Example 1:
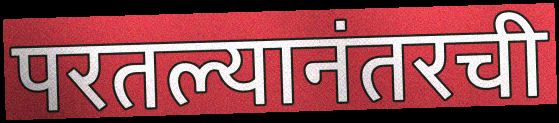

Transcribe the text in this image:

परतल्यानंतरची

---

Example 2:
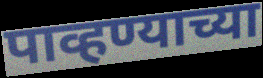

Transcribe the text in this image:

पाव्हण्याच्या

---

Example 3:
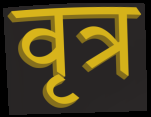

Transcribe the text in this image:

वृत्र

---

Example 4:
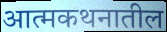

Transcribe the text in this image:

आत्मकथनातील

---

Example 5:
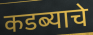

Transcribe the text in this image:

कडब्याचे